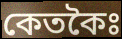
কেতকৈঃ